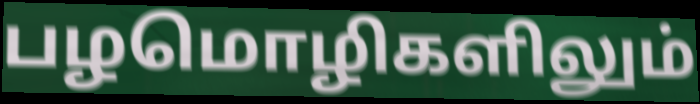
பழமொழிகளிலும்